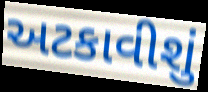
અટકાવીશું